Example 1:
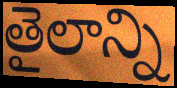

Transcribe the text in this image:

తైలాన్ని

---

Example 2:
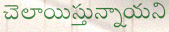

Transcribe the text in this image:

చెలాయిస్తున్నాయని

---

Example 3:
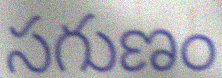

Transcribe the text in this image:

సగుణం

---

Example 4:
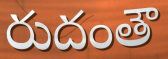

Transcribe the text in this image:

రుదంతౌ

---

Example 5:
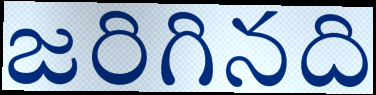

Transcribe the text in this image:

జరిగినది